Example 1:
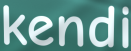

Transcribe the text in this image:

kendi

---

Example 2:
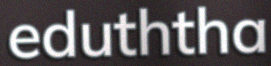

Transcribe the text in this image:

eduththa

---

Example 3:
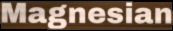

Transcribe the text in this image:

Magnesian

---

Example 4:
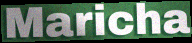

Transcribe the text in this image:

Maricha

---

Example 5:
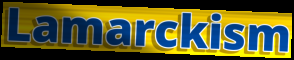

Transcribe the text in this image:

Lamarckism